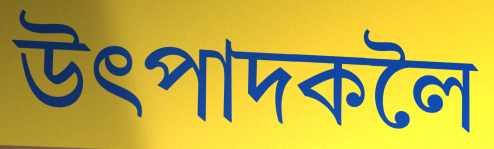
উৎপাদকলৈ